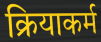
क्रियाकर्म